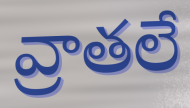
వ్రాతలే